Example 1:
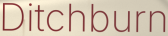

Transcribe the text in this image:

Ditchburn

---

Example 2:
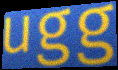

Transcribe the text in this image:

ugg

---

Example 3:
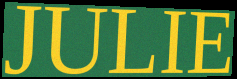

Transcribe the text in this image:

JULIE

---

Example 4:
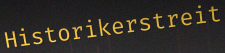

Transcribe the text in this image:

Historikerstreit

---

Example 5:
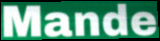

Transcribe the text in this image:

Mande